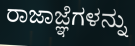
ರಾಜಾಜ್ಞೆಗಳನ್ನು